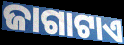
ଜାଗାଟାଏ